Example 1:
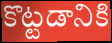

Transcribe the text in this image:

కొట్టడానికి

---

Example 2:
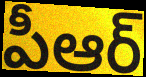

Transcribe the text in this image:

పీఆర్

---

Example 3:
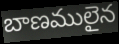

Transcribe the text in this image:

బాణములైన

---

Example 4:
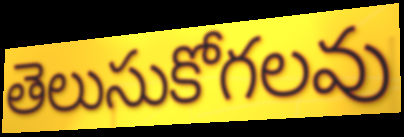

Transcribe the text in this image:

తెలుసుకోగలవు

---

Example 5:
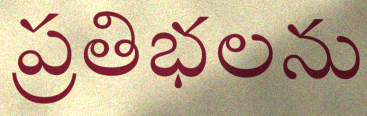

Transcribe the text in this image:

ప్రతిభలను